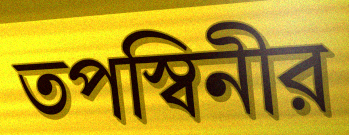
তপস্বিনীর